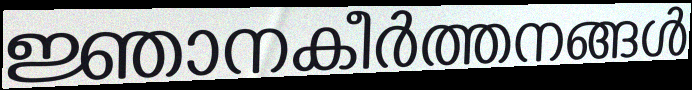
ജ്ഞാനകീർത്തനങ്ങൾ